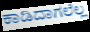
ಕಾಡಿದಾಗಲೆಲ್ಲ